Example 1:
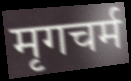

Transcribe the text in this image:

मृगचर्म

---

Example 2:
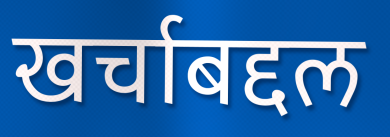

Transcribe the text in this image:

खर्चाबद्दल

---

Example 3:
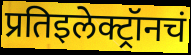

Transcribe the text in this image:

प्रतिइलेक्ट्रॉनचं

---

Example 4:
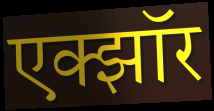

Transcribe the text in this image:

एक्झॉर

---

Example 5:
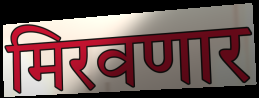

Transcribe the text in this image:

मिरवणार